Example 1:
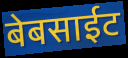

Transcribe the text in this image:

बेबसाईट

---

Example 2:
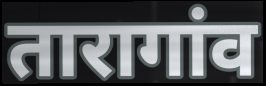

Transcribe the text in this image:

तारागांव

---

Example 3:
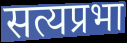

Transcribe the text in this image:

सत्यप्रभा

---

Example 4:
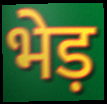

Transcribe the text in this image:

भेड़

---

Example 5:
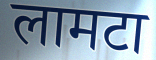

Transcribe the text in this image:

लामटा